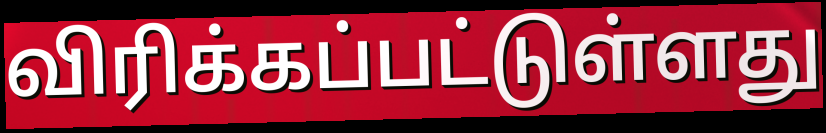
விரிக்கப்பட்டுள்ளது